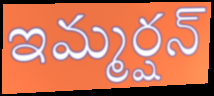
ఇమ్మర్షన్